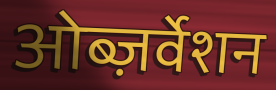
ओब्ज़र्वेशन